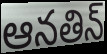
ఆనతిన్